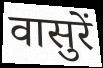
वासुरें